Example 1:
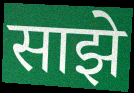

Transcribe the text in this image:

साझे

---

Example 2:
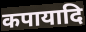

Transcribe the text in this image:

कपायादि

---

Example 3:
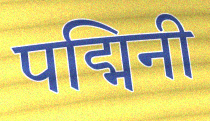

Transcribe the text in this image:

पद्मिनी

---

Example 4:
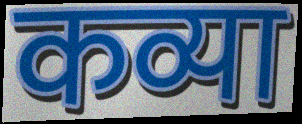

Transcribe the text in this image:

कव्या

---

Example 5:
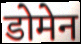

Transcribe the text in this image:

डोमेन